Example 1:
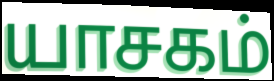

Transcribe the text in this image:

யாசகம்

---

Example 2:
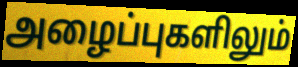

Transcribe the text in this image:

அழைப்புகளிலும்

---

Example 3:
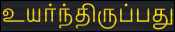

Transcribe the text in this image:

உயர்ந்திருப்பது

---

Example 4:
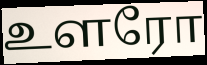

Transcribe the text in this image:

உளரோ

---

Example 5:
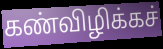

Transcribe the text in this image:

கண்விழிக்கச்